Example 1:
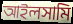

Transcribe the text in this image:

আইলসামি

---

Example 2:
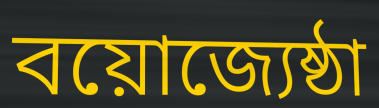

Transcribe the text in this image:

বয়োজ্যেষ্ঠা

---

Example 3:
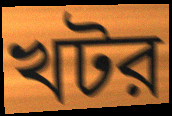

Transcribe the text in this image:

খটর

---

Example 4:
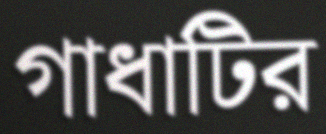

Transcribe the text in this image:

গাধাটির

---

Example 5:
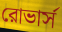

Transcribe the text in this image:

রোভার্স